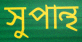
সুপান্থ